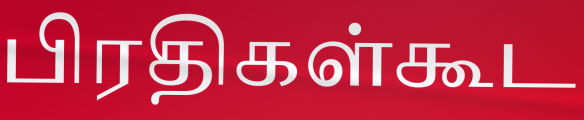
பிரதிகள்கூட